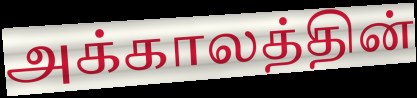
அக்காலத்தின்